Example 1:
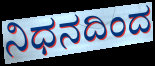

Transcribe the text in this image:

ನಿಧನದಿಂದ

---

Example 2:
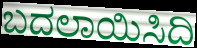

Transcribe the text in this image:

ಬದಲಾಯಿಸಿದಿ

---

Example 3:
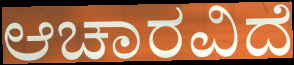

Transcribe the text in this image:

ಆಚಾರವಿದೆ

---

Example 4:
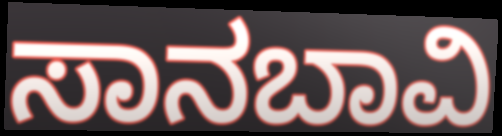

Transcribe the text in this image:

ಸಾನಬಾವಿ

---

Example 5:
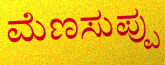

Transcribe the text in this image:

ಮೆಣಸುಪ್ಪು